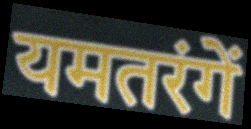
यमतरंगें